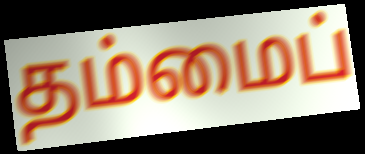
தம்மைப்